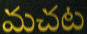
మచట